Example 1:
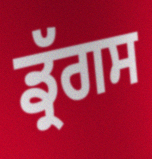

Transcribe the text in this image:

ਡ੍ਰੱਗਸ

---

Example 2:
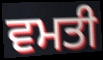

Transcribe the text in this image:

ਵਮਤੀ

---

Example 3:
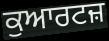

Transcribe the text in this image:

ਕੁਆਰਟਜ਼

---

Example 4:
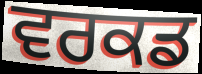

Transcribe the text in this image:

ਵਰਕਡ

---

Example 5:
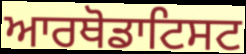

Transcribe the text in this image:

ਆਰਥੋਡਾਟਿਸਟ